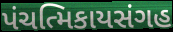
પંચત્મિકાયસંગહ